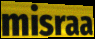
misraa